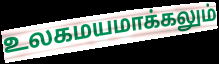
உலகமயமாக்கலும்